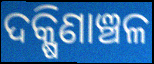
ଦକ୍ଷିଣାଞ୍ଚଳ